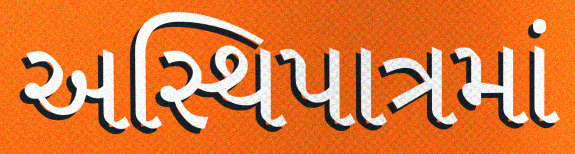
અસ્થિપાત્રમાં